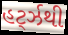
હર્ટ્ઝથી